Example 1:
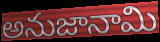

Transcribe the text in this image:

అనుజానామి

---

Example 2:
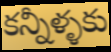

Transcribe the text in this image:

కన్నీళ్ళకు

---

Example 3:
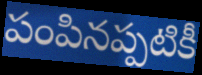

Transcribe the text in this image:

పంపినప్పటికీ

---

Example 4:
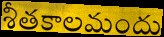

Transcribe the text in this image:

శీతకాలమందు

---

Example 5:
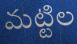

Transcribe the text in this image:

మట్టిల